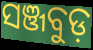
ସଞ୍ଜବୁଡ଼